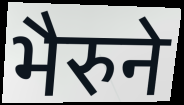
भैरुने